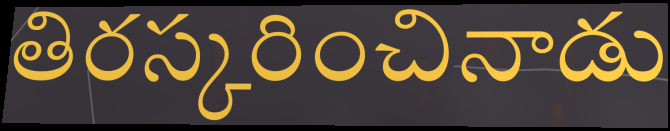
తిరస్కరించినాడు